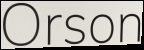
Orson